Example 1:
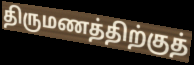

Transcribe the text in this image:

திருமணத்திற்குத்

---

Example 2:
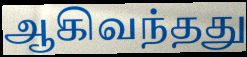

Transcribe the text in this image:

ஆகிவந்தது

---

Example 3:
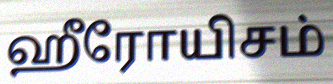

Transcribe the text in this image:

ஹீரோயிசம்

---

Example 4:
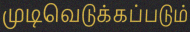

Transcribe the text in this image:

முடிவெடுக்கப்படும்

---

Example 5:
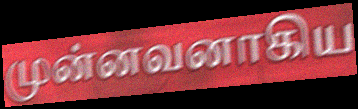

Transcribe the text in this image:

முன்னவனாகிய